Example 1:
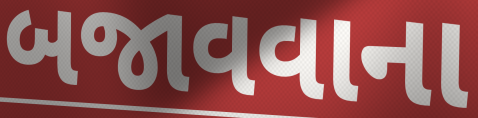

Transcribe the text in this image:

બજાવવાના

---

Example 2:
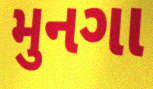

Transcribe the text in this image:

મુનગા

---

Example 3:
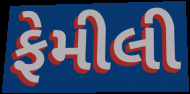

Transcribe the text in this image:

ફેમીલી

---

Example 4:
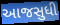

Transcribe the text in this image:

આજસુધી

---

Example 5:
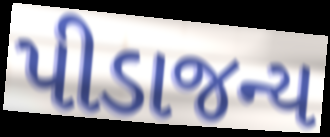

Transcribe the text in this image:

પીડાજન્ય